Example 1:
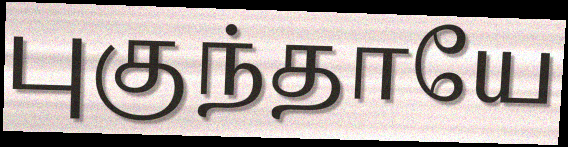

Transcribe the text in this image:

புகுந்தாயே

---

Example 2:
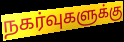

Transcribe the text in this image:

நகர்வுகளுக்கு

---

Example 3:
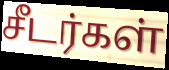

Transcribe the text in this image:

சீடர்கள்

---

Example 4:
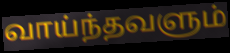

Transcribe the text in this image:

வாய்ந்தவளும்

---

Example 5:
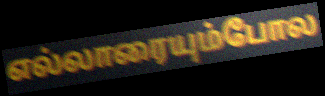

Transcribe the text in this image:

எல்லாரையும்போல